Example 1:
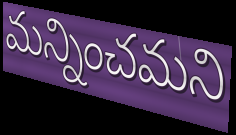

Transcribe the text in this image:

మన్నించమని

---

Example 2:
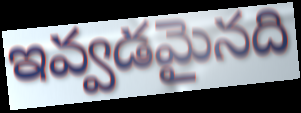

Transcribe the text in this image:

ఇవ్వడమైనది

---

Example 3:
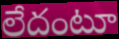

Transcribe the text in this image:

లేదంటూ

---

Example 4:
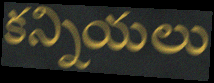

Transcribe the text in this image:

కన్నియలు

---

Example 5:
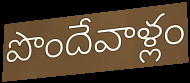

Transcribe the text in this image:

పొందేవాళ్లం